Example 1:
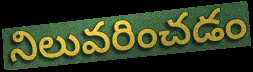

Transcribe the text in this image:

నిలువరించడం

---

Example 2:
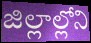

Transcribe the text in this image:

జిల్లాల్లోని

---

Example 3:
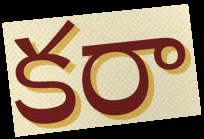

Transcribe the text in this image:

కరా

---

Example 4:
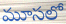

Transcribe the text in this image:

మూసలో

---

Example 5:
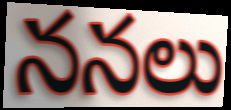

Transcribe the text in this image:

ననలు